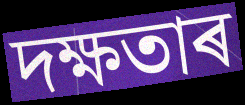
দক্ষতাৰ